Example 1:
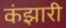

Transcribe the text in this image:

कंझारी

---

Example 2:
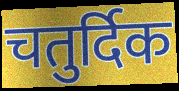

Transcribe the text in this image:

चतुर्दिक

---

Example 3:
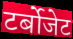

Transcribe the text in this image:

टर्बोजेट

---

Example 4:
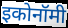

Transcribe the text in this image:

इकोनॉमी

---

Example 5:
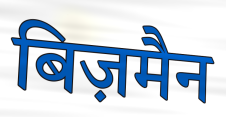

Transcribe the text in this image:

बिज़मैन